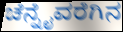
ಚೆನ್ನೈವರೆಗಿನ